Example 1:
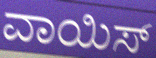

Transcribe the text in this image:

ವಾಯಿಸ್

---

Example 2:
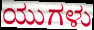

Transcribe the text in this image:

ಯುಗಳು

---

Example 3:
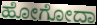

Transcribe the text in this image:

ಹೋಗೋದಾ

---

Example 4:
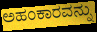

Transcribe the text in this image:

ಅಹಂಕಾರವನ್ನು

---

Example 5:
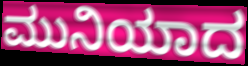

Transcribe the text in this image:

ಮುನಿಯಾದ